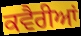
ਕਵੈਰੀਆਂ